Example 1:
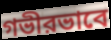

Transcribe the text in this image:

গভীরভাবে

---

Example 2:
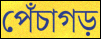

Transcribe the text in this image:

পেঁচাগড়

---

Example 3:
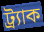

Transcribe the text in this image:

ট্র্যাক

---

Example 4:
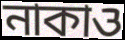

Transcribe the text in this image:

নাকাও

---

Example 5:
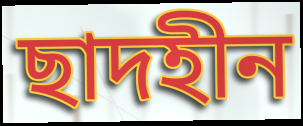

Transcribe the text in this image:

ছাদহীন